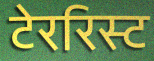
टेररिस्ट